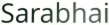
Sarabhai